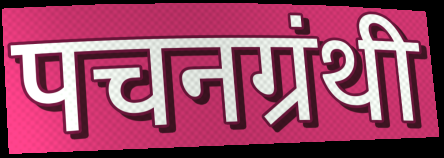
पचनग्रंथी